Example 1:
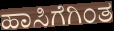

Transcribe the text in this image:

ಹಾಸಿಗೆಗಿಂತ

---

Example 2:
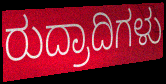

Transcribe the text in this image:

ರುದ್ರಾದಿಗಳು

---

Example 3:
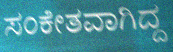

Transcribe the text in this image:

ಸಂಕೇತವಾಗಿದ್ದ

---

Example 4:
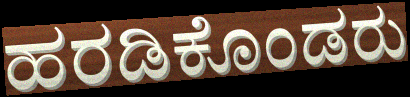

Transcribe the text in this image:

ಹರಡಿಕೊಂಡರು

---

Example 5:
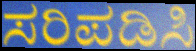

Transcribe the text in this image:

ಸರಿಪಡಿಸಿ